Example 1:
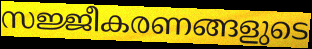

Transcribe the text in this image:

സജ്ജീകരണങ്ങളുടെ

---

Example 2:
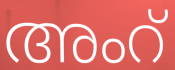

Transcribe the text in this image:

അംറ്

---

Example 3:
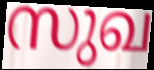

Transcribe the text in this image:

സുഖ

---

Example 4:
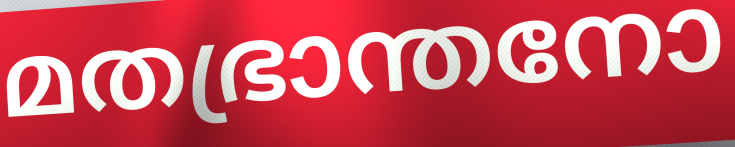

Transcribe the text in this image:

മതഭ്രാന്തനോ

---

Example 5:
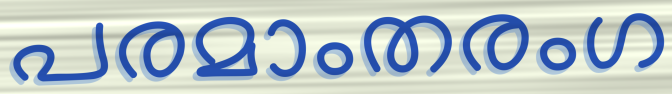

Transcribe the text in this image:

പരമാംതരംഗ